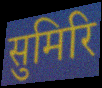
सुमिरि